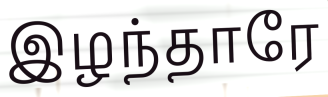
இழந்தாரே